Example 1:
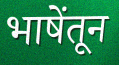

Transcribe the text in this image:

भाषेंतून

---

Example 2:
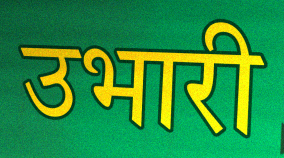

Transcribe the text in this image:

उभारी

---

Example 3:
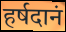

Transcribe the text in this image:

हर्षदानं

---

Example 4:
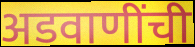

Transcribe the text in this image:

अडवाणींची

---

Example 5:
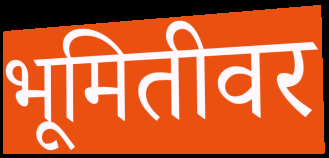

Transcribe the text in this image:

भूमितीवर